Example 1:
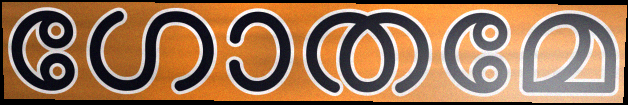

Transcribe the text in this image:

ഗോതമേ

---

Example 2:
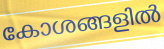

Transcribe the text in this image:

കോശങ്ങളിൽ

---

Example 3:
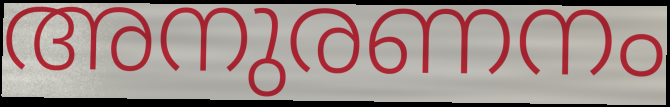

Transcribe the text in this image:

അനുരണനം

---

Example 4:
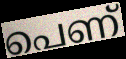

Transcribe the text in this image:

പെണ്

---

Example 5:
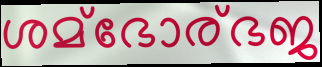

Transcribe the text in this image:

ശമ്ഭോര്ഭജ